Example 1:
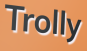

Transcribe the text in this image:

Trolly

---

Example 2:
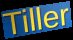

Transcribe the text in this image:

Tiller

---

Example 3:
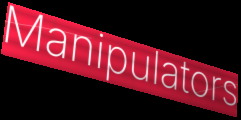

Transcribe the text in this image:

Manipulators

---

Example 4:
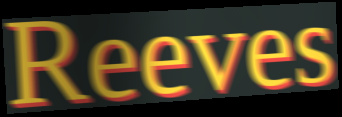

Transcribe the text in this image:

Reeves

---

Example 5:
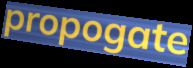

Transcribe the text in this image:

propogate